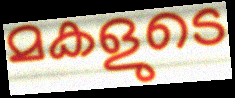
മകളുടെ